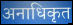
अनाधिकृत